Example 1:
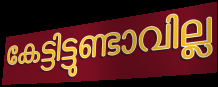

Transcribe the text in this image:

കേട്ടിട്ടുണ്ടാവില്ല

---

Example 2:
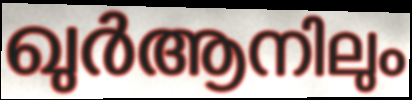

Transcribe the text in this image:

ഖുർആനിലും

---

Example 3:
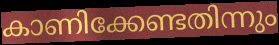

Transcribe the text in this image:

കാണിക്കേണ്ടതിന്നും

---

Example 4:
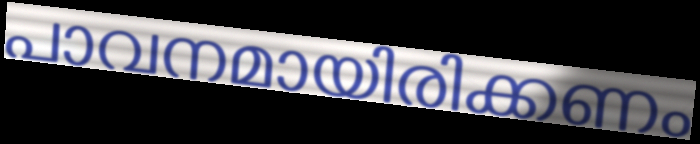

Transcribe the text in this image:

പാവനമായിരിക്കണം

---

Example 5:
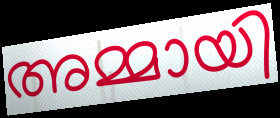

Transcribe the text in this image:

അമ്മായി